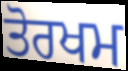
ਤੋਰਖਮ